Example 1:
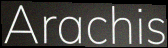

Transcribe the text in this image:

Arachis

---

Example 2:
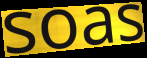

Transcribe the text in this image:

soas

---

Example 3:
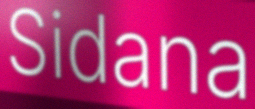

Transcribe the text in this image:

Sidana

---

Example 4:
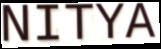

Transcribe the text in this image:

NITYA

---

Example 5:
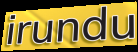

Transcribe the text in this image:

irundu